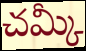
చమ్కీ